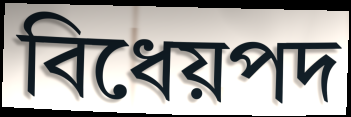
বিধেয়পদ